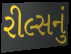
રીલ્સનું